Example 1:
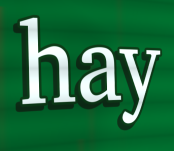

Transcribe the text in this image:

hay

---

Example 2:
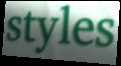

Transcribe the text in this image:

styles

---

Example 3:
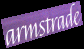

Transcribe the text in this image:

armstrade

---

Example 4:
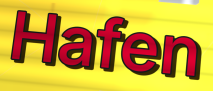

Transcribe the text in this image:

Hafen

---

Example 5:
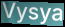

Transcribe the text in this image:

Vysya